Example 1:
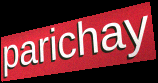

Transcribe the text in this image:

parichay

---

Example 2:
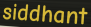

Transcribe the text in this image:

siddhant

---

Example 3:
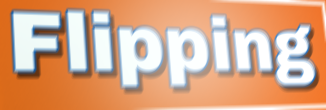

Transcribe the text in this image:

Flipping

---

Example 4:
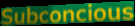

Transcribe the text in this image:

Subconcious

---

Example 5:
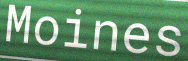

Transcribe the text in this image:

Moines